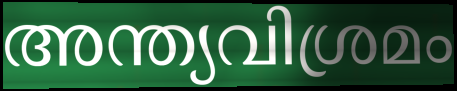
അന്ത്യവിശ്രമം